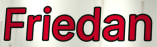
Friedan